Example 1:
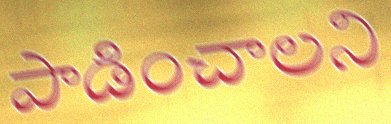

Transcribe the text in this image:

పాడించాలని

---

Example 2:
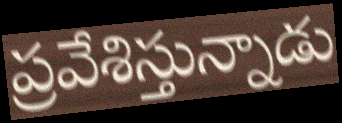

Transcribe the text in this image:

ప్రవేశిస్తున్నాడు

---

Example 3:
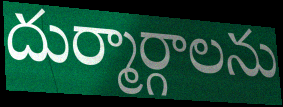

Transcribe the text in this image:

దుర్మార్గాలను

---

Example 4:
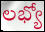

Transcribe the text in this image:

లభ్యో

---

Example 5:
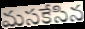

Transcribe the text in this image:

మసకేసిన